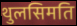
थुलसिमति